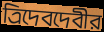
ত্রিদেবদেবীর